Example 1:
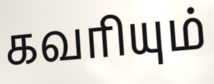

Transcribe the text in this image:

கவரியும்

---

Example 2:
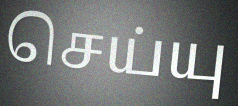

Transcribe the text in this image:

செய்யு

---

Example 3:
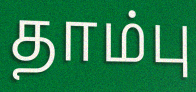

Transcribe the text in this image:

தாம்பு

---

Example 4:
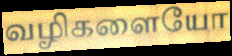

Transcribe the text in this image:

வழிகளையோ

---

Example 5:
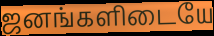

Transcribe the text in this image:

ஜனங்களிடையே